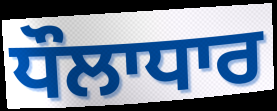
ਧੌਲਾਧਾਰ